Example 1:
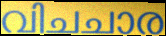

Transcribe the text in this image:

വിചചാര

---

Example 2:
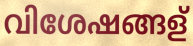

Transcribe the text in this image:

വിശേഷങ്ങള്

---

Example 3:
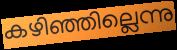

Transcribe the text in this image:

കഴിഞ്ഞില്ലെന്നു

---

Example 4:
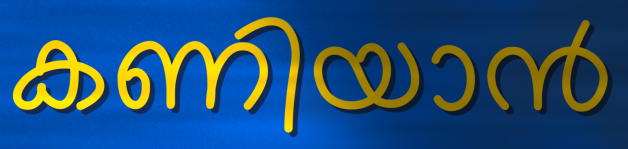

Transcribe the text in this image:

കണിയാൻ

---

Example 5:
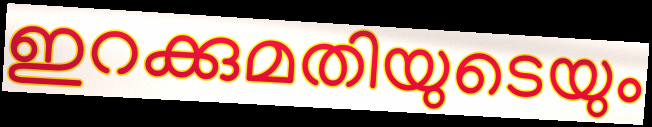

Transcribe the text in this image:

ഇറക്കുമതിയുടെയും